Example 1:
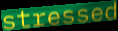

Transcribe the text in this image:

stressed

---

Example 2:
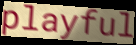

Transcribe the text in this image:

playful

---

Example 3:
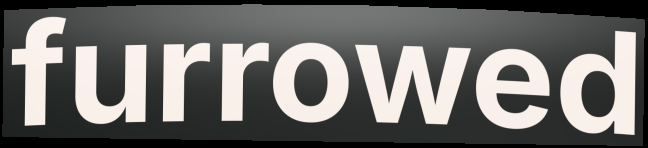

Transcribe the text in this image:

furrowed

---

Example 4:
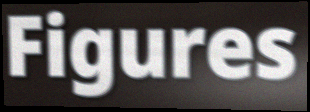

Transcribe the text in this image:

Figures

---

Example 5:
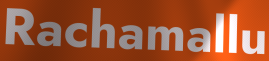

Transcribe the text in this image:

Rachamallu